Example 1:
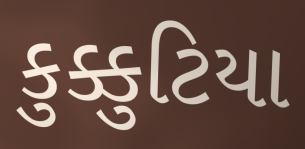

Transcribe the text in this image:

કુક્કુટિયા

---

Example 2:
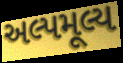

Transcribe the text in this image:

અલ્પમૂલ્ય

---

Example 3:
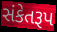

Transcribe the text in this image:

સંકેતરૂપ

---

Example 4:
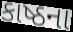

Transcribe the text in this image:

કાષ્ઠના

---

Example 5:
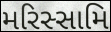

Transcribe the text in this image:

મરિસ્સામિ